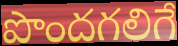
పొందగలిగే